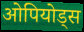
ओपियोड्स